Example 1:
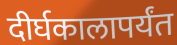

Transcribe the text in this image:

दीर्घकालापर्यंत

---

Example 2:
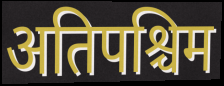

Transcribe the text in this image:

अतिपश्चिम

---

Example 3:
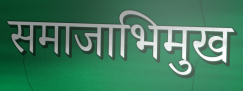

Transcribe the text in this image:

समाजाभिमुख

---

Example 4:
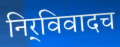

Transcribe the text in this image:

निर्विवादच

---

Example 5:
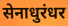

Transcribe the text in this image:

सेनाधुरंधर